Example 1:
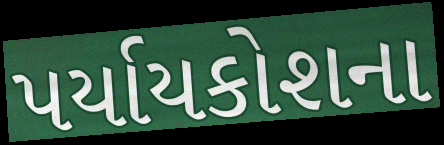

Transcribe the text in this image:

પર્યાયકોશના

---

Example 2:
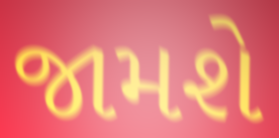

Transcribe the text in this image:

જામશે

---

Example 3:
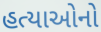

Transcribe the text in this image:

હત્યાઓનો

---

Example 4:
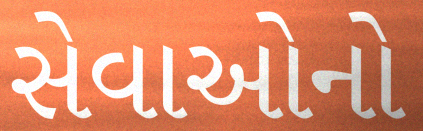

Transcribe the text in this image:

સેવાઓનો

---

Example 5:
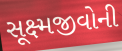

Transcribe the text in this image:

સૂક્ષ્મજીવોની